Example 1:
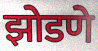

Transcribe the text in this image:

झोडणे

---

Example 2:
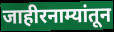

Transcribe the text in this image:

जाहीरनाम्यांतून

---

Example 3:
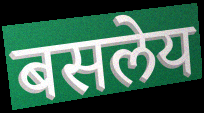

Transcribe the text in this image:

बसलेय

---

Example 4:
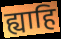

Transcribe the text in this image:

ह्याहि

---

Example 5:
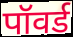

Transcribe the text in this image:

पॉवर्ड